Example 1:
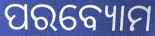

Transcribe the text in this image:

ପରବ୍ୟୋମ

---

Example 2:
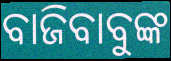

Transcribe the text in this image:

ବାଜିବାବୁଙ୍କ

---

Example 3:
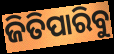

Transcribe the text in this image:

ଜିତିପାରିବୁ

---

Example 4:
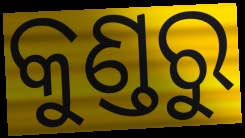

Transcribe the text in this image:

କୁଣ୍ଡରୁ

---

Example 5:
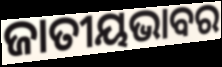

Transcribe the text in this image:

ଜାତୀୟଭାବର